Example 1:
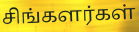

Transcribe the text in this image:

சிங்களர்கள்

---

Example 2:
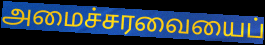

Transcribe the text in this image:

அமைச்சரவையைப்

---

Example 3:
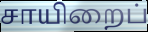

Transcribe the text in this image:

சாயிறைப்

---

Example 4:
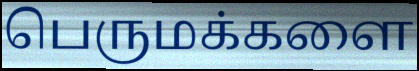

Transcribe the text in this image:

பெருமக்களை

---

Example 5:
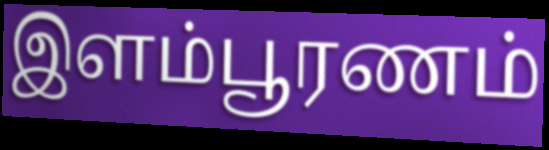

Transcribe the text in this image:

இளம்பூரணம்